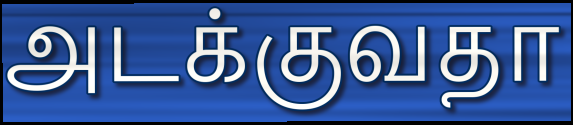
அடக்குவதா